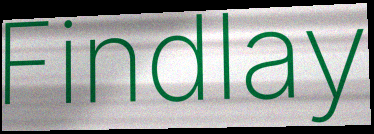
Findlay